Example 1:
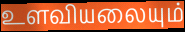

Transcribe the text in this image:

உளவியலையும்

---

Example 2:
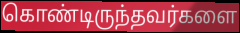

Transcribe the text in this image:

கொண்டிருந்தவர்களை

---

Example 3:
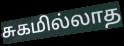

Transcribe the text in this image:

சுகமில்லாத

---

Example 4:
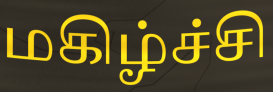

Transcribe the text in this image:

மகிழ்ச்சி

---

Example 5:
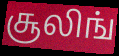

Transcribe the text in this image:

சூலிங்